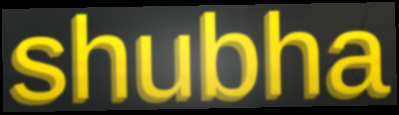
shubha